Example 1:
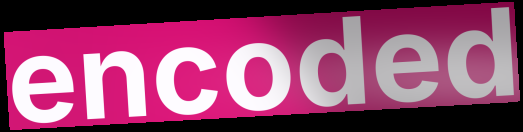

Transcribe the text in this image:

encoded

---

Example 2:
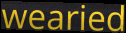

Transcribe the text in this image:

wearied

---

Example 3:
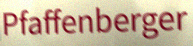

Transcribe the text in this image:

Pfaffenberger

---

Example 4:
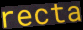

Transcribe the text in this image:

recta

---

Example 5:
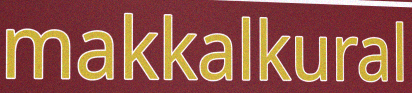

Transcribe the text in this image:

makkalkural